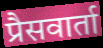
प्रैसवार्ता